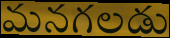
మనగలడు